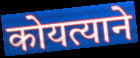
कोयत्याने